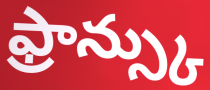
ఫ్రాన్స్కు